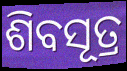
ଶିବସୂତ୍ର